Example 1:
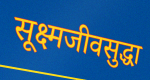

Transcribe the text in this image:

सूक्ष्मजीवसुद्धा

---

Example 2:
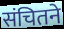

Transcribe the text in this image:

संचितने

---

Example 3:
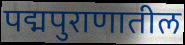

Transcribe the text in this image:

पद्मपुराणातील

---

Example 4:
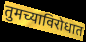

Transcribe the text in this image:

तुमच्याविरोधात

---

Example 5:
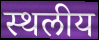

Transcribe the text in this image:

स्थलीय